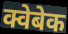
क्वेबेक